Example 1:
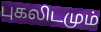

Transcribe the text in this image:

புகலிடமும்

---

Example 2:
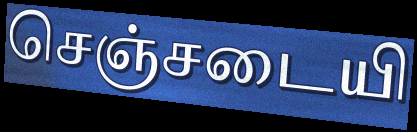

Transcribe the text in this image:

செஞ்சடையி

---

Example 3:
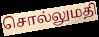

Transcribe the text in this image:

சொல்லுமதி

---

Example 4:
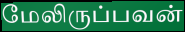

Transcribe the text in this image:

மேலிருப்பவன்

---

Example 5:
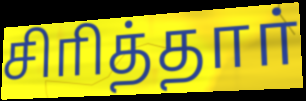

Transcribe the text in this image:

சிரித்தார்